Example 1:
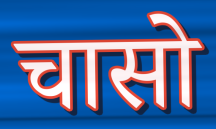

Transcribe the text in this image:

चासो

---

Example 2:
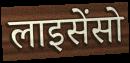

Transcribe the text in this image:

लाइसेंसो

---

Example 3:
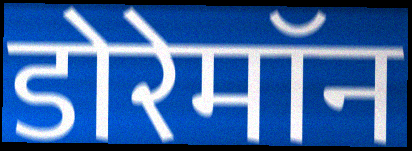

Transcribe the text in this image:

डोरेमॉन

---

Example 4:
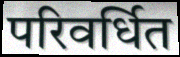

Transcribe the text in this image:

परिवर्धित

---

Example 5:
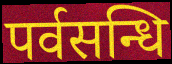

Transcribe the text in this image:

पर्वसन्धि